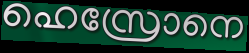
ഹെസ്രോനെ